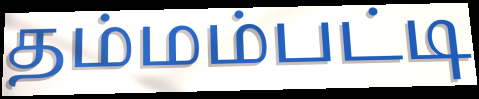
தம்மம்பட்டி